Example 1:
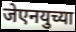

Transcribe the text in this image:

जेएनयुच्या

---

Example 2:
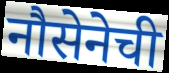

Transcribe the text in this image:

नौसेनेची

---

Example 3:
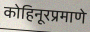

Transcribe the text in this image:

कोहिनूरप्रमाणे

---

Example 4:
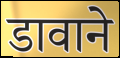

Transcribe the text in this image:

डावाने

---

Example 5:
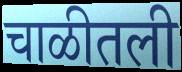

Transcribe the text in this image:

चाळीतली